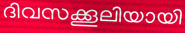
ദിവസക്കൂലിയായി